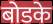
बोडके